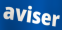
aviser